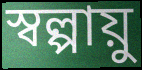
স্বল্পায়ু